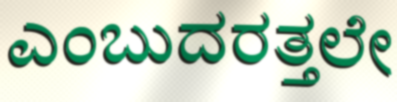
ಎಂಬುದರತ್ತಲೇ